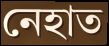
নেহাত